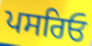
ਪਸਰਿਓ